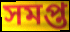
সমপ্ত